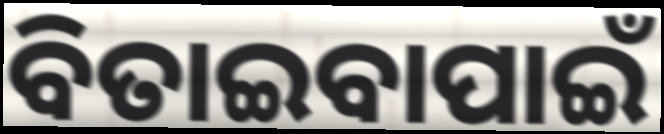
ବିତାଇବାପାଇଁ